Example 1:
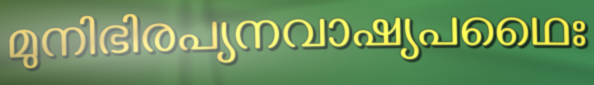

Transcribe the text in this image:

മുനിഭിരപ്യനവാഷ്യപഥൈഃ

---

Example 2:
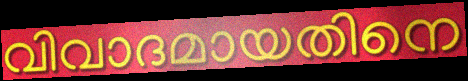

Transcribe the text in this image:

വിവാദമായതിനെ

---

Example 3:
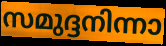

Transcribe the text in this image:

സമുദ്ദനിന്നാ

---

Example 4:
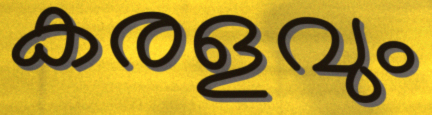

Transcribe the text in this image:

കരളവും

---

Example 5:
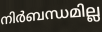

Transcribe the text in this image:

നിർബന്ധമില്ല